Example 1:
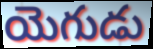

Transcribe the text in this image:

యెగుడు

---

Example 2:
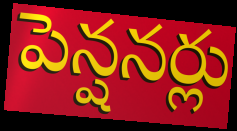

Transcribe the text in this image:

పెన్షనర్లు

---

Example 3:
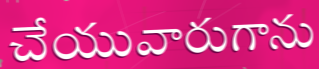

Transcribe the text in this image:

చేయువారుగాను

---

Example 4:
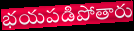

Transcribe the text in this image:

భయపడిపోతారు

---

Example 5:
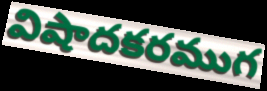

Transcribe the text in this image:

విషాదకరముగ